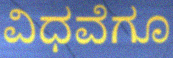
ವಿಧವೆಗೂ